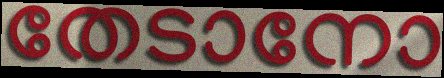
തേടാനോ